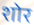
शोर